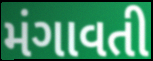
મંગાવતી